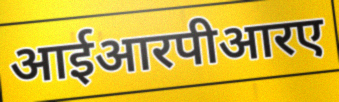
आईआरपीआरए